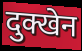
दुक्खेन